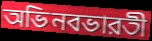
অভিনবভারতী